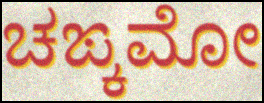
ಚಙ್ಕಮೋ